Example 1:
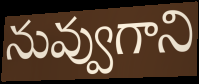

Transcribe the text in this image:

నువ్వుగాని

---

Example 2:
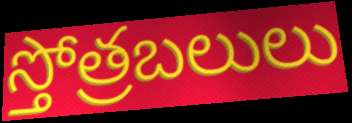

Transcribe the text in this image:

స్తోత్రబలులు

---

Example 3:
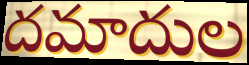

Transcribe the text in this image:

దమాదుల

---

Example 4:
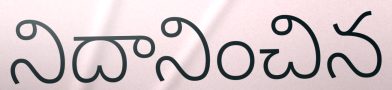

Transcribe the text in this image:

నిదానించిన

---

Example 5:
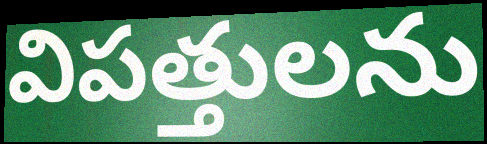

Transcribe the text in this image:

విపత్తులను